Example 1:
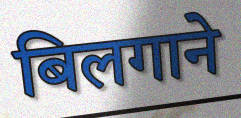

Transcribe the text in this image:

बिलगाने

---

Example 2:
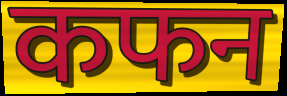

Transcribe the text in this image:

कफन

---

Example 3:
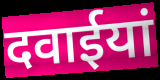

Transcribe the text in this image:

दवाईयां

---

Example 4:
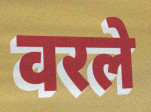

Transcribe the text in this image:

वरले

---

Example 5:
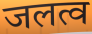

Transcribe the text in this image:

जलत्व